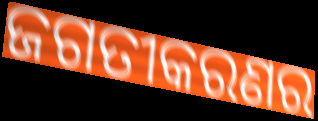
ଜଗତୀକରଣର